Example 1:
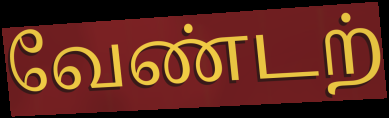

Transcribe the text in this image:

வேண்டற்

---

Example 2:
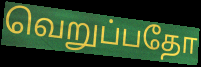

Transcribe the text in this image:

வெறுப்பதோ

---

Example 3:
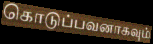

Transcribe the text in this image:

கொடுப்பவனாகவும்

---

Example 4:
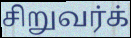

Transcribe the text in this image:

சிறுவர்க்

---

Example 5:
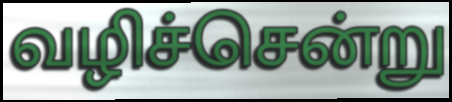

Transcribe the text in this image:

வழிச்சென்று